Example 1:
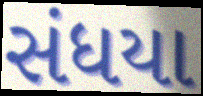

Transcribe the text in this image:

સંધયા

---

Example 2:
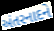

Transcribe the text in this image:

અંતરનાદને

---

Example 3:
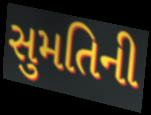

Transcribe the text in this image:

સુમતિની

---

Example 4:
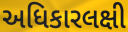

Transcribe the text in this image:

અધિકારલક્ષી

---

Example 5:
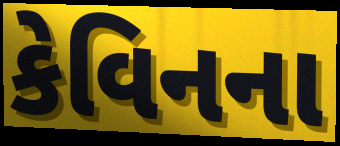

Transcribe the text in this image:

કેવિનના